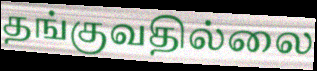
தங்குவதில்லை